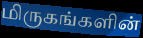
மிருகங்களின்